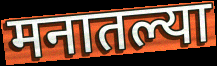
मनातल्या